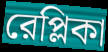
রেপ্লিকা